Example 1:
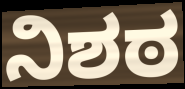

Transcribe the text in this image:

ನಿಶಠ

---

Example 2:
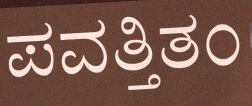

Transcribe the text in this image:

ಪವತ್ತಿತಂ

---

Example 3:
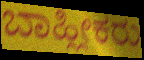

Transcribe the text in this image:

ಬಾಹ್ಲೀಕರು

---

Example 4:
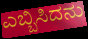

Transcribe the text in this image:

ಎಬ್ಬಿಸಿದನು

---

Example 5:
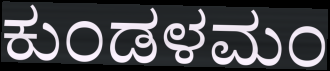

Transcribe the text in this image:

ಕುಂಡಳಮಂ